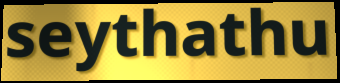
seythathu